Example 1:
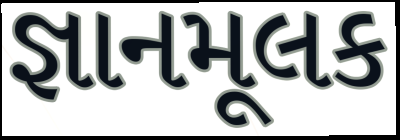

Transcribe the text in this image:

જ્ઞાનમૂલક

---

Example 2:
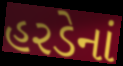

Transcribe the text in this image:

હરડેનાં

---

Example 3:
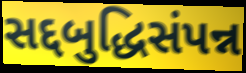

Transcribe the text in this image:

સદ્દબુદ્ધિસંપન્ન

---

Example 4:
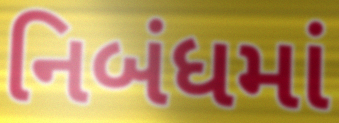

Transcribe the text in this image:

નિબંધમાં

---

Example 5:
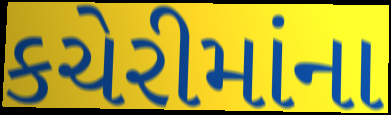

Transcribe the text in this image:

કચેરીમાંના